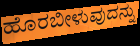
ಹೊರಬೀಳುವುದನ್ನು